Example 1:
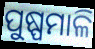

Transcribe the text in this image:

ପୁଷ୍ପମାଳି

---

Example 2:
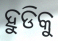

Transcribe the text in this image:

ହୁଡିକୁ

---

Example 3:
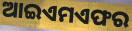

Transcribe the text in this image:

ଆଇଏମଏଫର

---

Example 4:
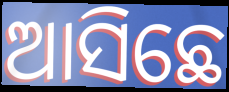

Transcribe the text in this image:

ଆସିଛେ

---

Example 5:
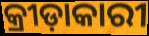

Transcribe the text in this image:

କ୍ରୀଡ଼ାକାରୀ